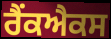
ਰੈਂਕਐਕਸ